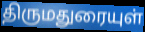
திருமதுரையுள்